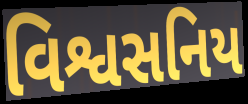
વિશ્વસનિય